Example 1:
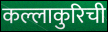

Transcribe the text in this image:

कल्लाकुरिची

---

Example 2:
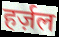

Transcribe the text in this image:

हर्ज़ल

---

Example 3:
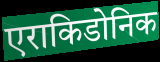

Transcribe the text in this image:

एराकिडोनिक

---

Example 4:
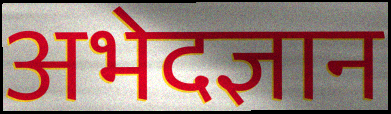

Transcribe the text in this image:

अभेदज्ञान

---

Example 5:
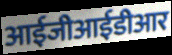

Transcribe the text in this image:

आईजीआईडीआर